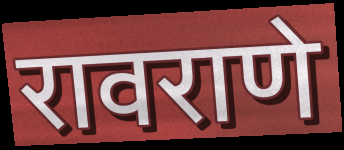
रावराणे